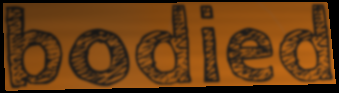
bodied